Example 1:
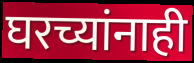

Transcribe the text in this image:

घरच्यांनाही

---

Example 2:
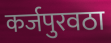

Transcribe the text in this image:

कर्जपुरवठा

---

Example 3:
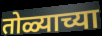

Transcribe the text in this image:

तोळ्याच्या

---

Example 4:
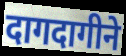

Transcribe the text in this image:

दागदागीने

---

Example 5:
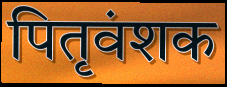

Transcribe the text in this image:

पितृवंशक